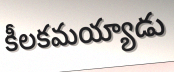
కీలకమయ్యాడు